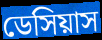
ডেসিয়াস